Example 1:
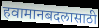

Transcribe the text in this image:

हवामानबदलासाठी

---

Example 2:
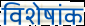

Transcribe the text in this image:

विशेषांक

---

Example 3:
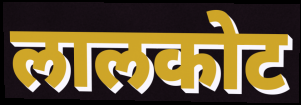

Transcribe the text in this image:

लालकोट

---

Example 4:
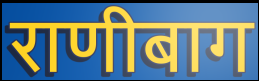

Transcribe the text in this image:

राणीबाग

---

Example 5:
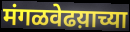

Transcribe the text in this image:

मंगळवेढय़ाच्या